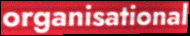
organisational